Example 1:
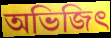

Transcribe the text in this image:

অভিজিৎ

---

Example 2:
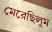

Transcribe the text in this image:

মেরেছিলুম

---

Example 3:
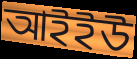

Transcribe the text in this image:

আইইউ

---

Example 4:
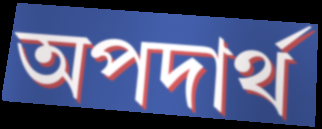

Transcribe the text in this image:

অপদার্থ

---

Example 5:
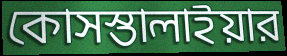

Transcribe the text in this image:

কোসস্তালাইয়ার